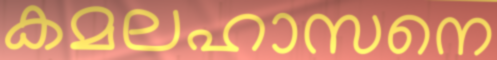
കമലഹാസനെ